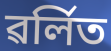
ৱৰ্লিত